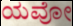
ಯವೋ